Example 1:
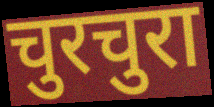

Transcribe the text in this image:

चुरचुरा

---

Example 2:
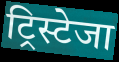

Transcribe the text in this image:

ट्रिस्टेजा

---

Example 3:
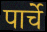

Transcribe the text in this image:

पार्चे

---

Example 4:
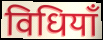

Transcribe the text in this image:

विधियाँ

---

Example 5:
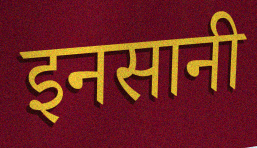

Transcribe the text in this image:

इनसानी